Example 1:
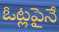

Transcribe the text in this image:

ఓట్లపైనే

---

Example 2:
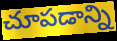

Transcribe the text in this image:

చూపడాన్ని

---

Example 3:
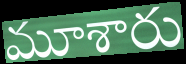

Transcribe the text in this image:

మూశారు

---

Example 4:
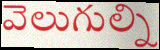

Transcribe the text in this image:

వెలుగుల్ని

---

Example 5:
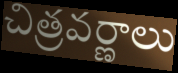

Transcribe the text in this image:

చిత్రవర్ణాలు